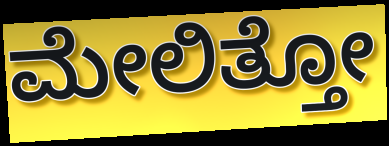
ಮೇಲಿತ್ತೋ